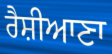
ਰੈਸ਼ੀਆਣਾ